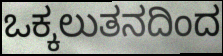
ಒಕ್ಕಲುತನದಿಂದ